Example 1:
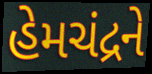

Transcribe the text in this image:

હેમચંદ્રને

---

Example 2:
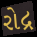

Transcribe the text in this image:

રોદ્ર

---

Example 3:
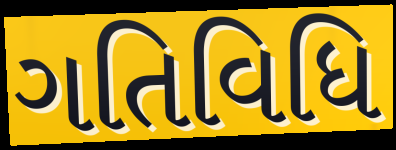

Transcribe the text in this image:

ગતિવિધિ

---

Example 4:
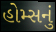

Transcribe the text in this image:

હોમ્સનું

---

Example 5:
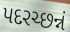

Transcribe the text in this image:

પદરચ્છન્નં